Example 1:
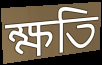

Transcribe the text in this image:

ক্ষতি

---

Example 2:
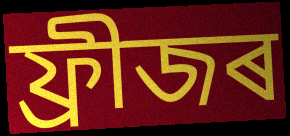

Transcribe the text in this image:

ফ্ৰীজৰ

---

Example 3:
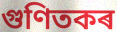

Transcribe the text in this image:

গুণিতকৰ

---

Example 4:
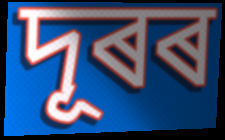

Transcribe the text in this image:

দূৰৰ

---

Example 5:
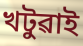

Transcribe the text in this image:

খটুৱাই